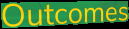
Outcomes